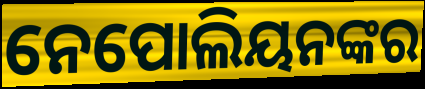
ନେପୋଲିୟନଙ୍କର